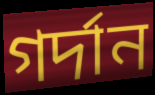
গর্দান